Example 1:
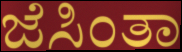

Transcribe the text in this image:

ಜೆಸಿಂತಾ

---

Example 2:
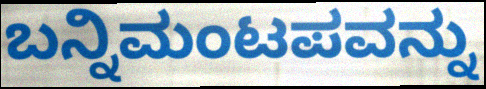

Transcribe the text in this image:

ಬನ್ನಿಮಂಟಪವನ್ನು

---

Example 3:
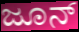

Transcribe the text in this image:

ಜೂನ್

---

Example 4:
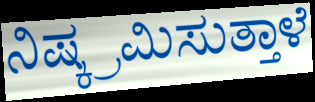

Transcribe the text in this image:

ನಿಷ್ಕ್ರಮಿಸುತ್ತಾಳೆ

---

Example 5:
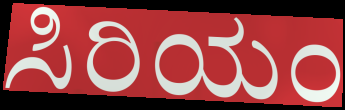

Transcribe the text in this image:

ಸಿರಿಯಂ